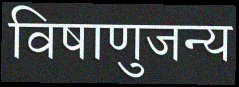
विषाणुजन्य